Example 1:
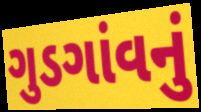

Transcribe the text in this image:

ગુડગાંવનું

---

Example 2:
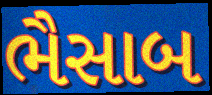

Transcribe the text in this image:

ભૈસાબ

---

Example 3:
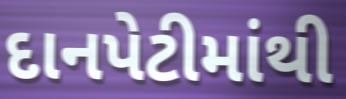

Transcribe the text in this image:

દાનપેટીમાંથી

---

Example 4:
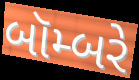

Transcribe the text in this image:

બૉમ્બરે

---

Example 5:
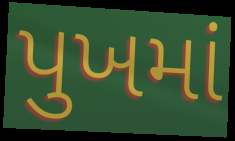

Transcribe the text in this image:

પુખમાં